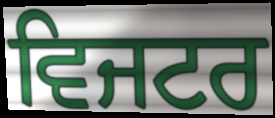
ਵਿਜਟਰ